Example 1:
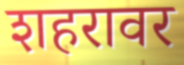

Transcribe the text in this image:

शहरावर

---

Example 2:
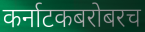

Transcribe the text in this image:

कर्नाटकबरोबरच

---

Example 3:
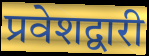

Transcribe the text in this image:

प्रवेशद्वारी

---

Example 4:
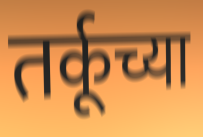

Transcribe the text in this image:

तर्कूच्या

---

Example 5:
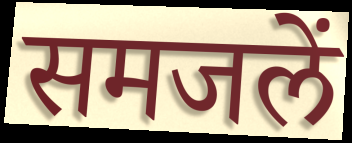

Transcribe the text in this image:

समजलें